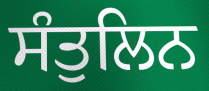
ਸੰਤੁਲਿਨ